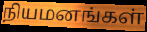
நியமனங்கள்